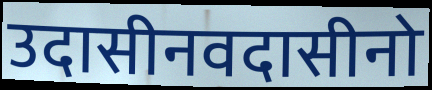
उदासीनवदासीनो